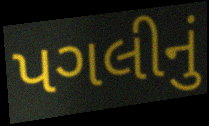
પગલીનું